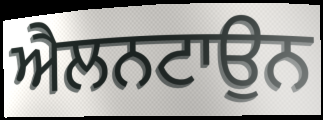
ਐਲਨਟਾਉਨ